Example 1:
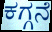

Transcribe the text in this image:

ಕಗ್ಗನೆ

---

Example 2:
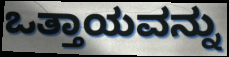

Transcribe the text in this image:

ಒತ್ತಾಯವನ್ನು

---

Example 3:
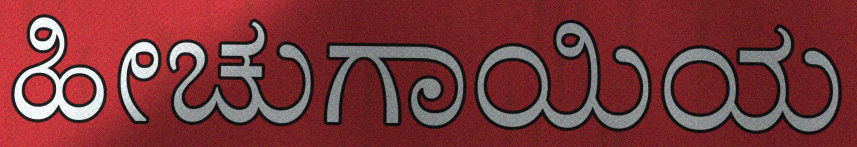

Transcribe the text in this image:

ಹೀಚುಗಾಯಿಯ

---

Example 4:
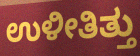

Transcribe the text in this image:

ಉಳೀತಿತ್ತು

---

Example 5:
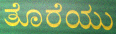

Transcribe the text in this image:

ತೊರೆಯು